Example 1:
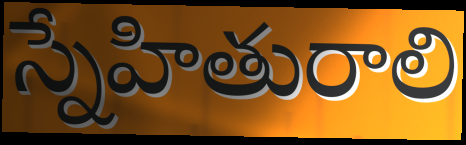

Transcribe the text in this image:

స్నేహితురాలి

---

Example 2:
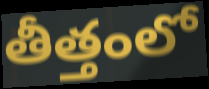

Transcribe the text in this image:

తీత్తంలో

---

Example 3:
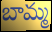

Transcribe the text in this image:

బామ్మ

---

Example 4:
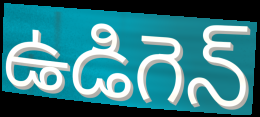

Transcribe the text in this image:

ఉడిగెన్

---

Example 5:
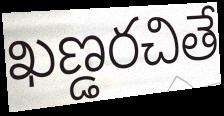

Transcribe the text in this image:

ఖణ్డరచితే